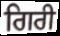
ਗਿਰੀ